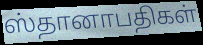
ஸ்தானாபதிகள்